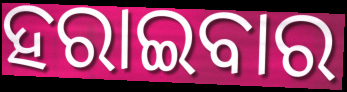
ହରାଇବାର